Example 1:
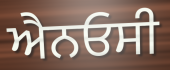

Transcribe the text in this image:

ਐਨਓਸੀ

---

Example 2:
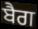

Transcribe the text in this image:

ਬੈਗ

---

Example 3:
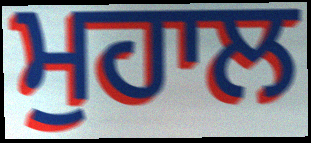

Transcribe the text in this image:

ਮੁਹਾਲ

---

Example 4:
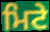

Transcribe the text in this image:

ਮਿਟੇ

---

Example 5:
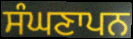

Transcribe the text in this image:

ਸੰਘਣਾਪਨ